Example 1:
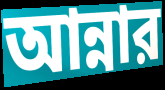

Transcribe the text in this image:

আন্নার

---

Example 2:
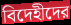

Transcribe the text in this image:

বিদেহীদের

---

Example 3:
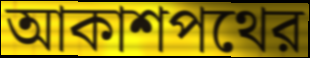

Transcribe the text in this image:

আকাশপথের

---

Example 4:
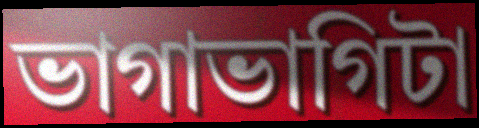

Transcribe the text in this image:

ভাগাভাগিটা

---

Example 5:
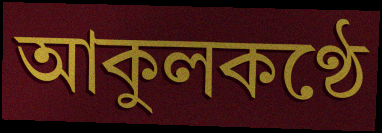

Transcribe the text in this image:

আকুলকণ্ঠে